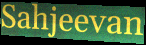
Sahjeevan